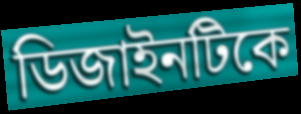
ডিজাইনটিকে